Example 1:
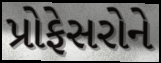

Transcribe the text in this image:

પ્રોફેસરોને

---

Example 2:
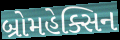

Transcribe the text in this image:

બ્રોમહેક્સિન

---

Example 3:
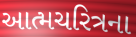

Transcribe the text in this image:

આત્મચરિત્રના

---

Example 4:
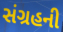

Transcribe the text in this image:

સંગ્રહની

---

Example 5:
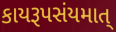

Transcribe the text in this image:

કાયરૂપસંયમાત્